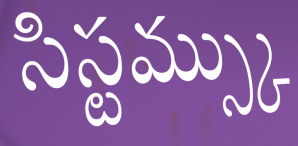
సిస్టమ్స్కు